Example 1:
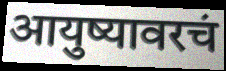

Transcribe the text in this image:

आयुष्यावरचं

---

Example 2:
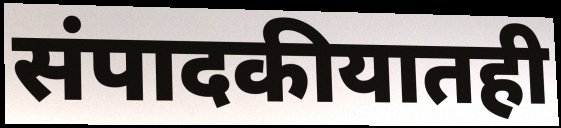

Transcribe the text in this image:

संपादकीयातही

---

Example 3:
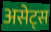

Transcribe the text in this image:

असेट्स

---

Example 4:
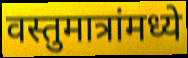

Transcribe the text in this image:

वस्तुमात्रांमध्ये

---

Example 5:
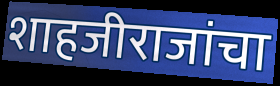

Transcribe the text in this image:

शाहजीराजांचा